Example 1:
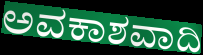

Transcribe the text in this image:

ಅವಕಾಶವಾದಿ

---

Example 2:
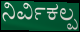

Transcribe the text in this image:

ನಿರ್ವಿಕಲ್ಪ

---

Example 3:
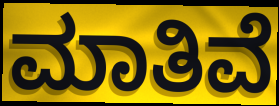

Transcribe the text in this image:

ಮಾತಿವೆ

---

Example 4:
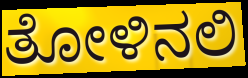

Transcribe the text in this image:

ತೋಳಿನಲಿ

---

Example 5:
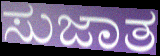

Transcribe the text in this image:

ಸುಜಾತ